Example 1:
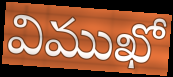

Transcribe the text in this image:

విముఖో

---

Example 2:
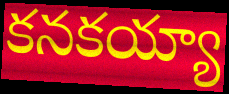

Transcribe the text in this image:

కనకయ్యా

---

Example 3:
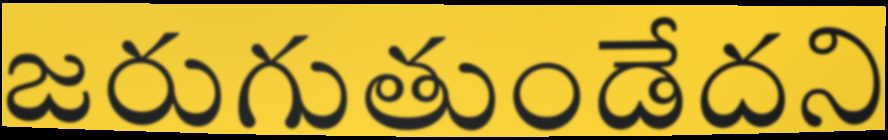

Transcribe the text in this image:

జరుగుతుండేదని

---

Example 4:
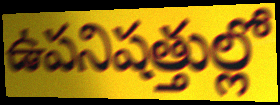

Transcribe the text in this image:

ఉపనిషత్తుల్లో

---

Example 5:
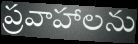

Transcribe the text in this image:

ప్రవాహాలను